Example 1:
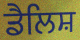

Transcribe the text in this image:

ਡੈਲਿਸ਼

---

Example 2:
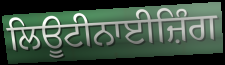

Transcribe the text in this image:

ਲਿਊਟੀਨਾਈਜ਼ਿੰਗ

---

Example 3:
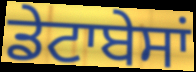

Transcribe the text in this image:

ਡੇਟਾਬੇਸਾਂ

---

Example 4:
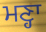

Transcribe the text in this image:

ਮਣ੍ਹਾ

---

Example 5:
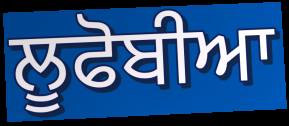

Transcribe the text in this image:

ਲੂਫੋਬੀਆ